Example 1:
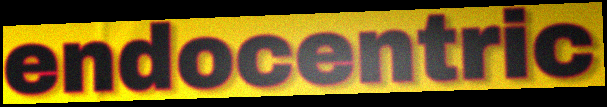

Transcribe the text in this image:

endocentric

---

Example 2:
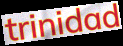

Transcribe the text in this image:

trinidad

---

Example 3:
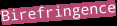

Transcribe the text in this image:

Birefringence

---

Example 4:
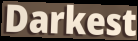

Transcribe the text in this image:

Darkest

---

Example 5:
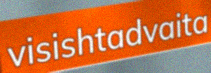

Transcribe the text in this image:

visishtadvaita